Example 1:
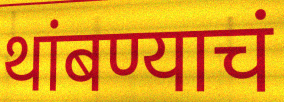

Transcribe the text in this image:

थांबण्याचं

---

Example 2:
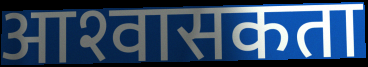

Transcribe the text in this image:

आश्वासकता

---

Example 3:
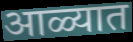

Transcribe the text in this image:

आळ्यात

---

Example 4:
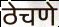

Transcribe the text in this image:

ठेचणे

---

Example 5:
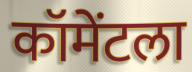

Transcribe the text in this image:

कॉमेंटला